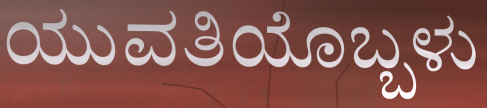
ಯುವತಿಯೊಬ್ಬಳು